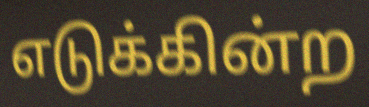
எடுக்கின்ற